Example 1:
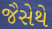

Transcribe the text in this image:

જૈસેથે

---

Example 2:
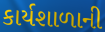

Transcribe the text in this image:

કાર્યશાળાની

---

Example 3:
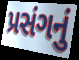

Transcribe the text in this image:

પ્રસંગનું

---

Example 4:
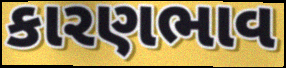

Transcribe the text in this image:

કારણભાવ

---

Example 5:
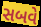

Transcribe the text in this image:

સબવે